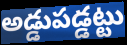
అడ్డుపడ్డట్టు